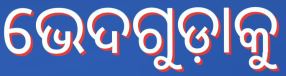
ଭେଦଗୁଡ଼ାକୁ